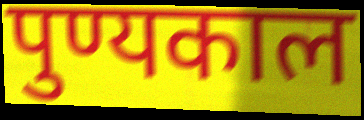
पुण्यकाल